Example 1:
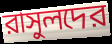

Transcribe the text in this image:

রাসুলদের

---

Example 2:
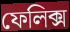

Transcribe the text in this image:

ফেলিক্স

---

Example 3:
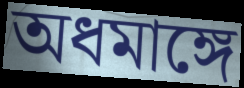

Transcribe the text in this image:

অধমাঙ্গে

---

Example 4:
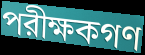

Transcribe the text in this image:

পরীক্ষকগণ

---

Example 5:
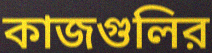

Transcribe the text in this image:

কাজগুলির